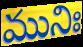
మునిః